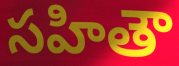
సహితౌ